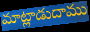
మాట్లాడుదాము